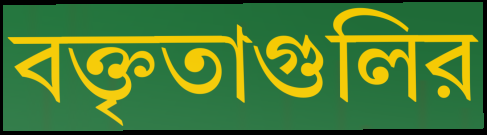
বক্তৃতাগুলির